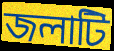
জলাটি